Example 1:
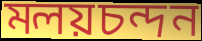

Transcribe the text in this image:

মলয়চন্দন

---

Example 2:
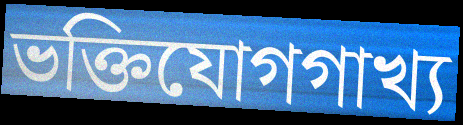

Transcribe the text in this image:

ভক্তিযোগগাখ্য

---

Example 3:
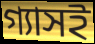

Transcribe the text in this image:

গ্যাসই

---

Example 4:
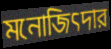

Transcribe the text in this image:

মনোজিৎদার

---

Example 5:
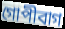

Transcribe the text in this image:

গোপীবাগ